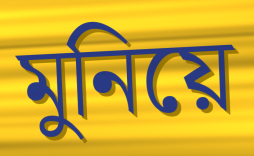
মুনিয়ে